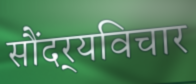
सौंदर्यविचार